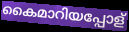
കൈമാറിയപ്പോള്